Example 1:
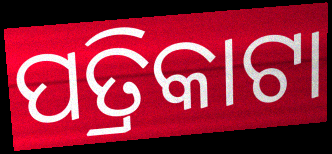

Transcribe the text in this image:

ପତ୍ରିକାଟା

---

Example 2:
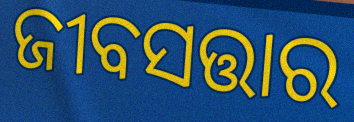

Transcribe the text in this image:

ଜୀବସତ୍ତାର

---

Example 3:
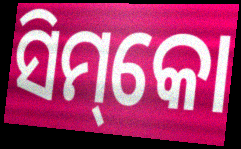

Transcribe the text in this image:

ସିମ୍‌କୋ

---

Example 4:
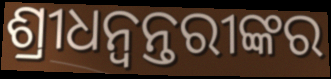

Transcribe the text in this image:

ଶ୍ରୀଧନ୍ୱନ୍ତରୀଙ୍କର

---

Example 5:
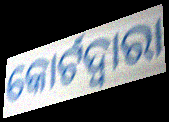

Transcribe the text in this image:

କୋର୍ଟଦ୍ୱାରା